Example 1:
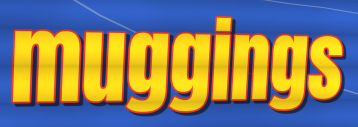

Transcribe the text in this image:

muggings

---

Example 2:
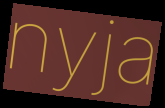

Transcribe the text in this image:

nyja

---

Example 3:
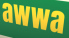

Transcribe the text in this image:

awwa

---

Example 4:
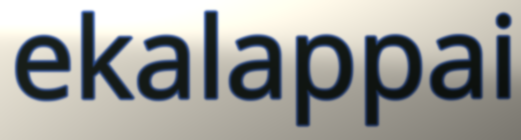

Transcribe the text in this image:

ekalappai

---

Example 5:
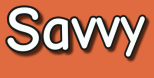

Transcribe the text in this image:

Savvy